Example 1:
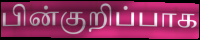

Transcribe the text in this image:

பின்குறிப்பாக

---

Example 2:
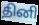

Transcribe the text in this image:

தினி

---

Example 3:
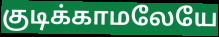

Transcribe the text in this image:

குடிக்காமலேயே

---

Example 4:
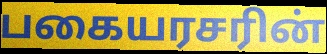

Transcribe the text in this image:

பகையரசரின்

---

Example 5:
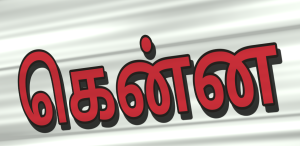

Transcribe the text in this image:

கென்ன